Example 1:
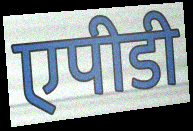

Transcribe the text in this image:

एपीडी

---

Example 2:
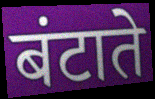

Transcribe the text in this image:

बंटाते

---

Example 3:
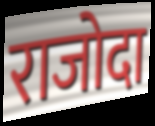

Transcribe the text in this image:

राजोदा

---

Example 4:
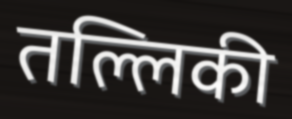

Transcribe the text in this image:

तल्लिकी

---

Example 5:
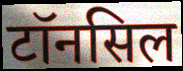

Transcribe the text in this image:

टॉनसिल